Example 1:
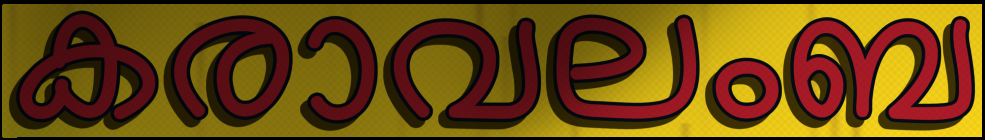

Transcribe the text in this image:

കരാവലംബ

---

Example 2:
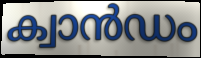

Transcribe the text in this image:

ക്വാൻഡം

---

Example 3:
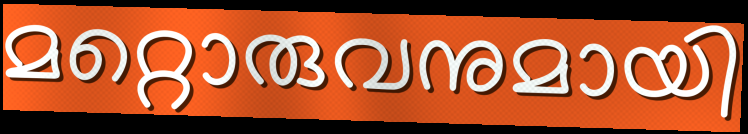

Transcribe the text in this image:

മറ്റൊരുവനുമായി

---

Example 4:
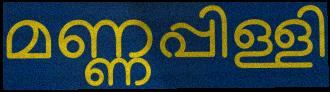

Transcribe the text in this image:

മണ്ണപ്പിള്ളി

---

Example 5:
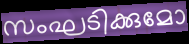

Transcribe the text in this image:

സംഘടിക്കുമോ